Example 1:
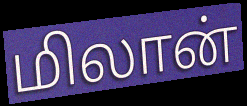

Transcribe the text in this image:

மிலான்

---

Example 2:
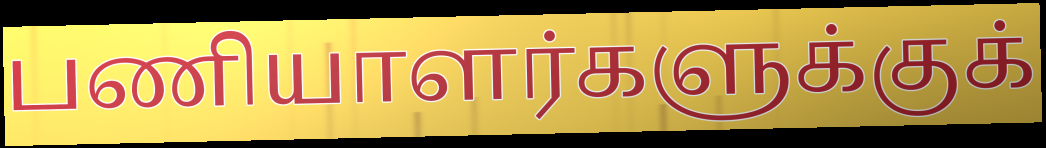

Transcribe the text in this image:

பணியாளர்களுக்குக்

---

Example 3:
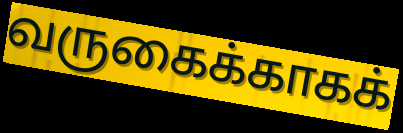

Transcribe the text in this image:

வருகைக்காகக்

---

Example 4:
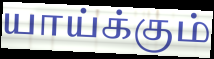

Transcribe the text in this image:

யாய்க்கும்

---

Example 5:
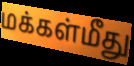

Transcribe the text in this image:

மக்கள்மீது